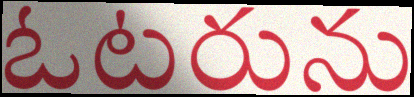
ఓటరును